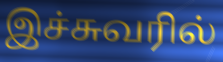
இச்சுவரில்